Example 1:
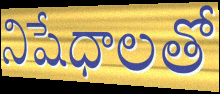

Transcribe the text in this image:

నిషేధాలతో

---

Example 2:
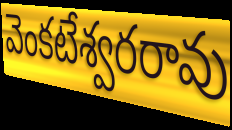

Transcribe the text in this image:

వెంకటేశ్వరరావు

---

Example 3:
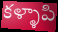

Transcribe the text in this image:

కళ్ళాపి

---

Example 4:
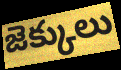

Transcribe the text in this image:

జెక్కులు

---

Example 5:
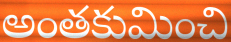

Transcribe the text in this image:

అంతకుమించి